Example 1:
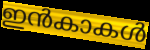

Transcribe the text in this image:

ഇൻകാകൾ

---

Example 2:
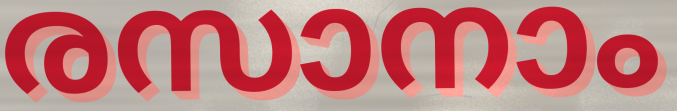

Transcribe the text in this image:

രസാനാം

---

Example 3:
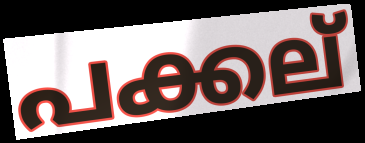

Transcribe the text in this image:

പക്കല്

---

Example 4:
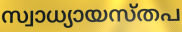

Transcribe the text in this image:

സ്വാധ്യായസ്തപ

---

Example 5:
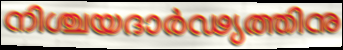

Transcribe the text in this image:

നിശ്ചയദാർഢ്യത്തിനു